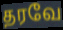
தரவே